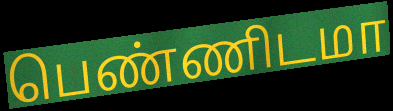
பெண்ணிடமா